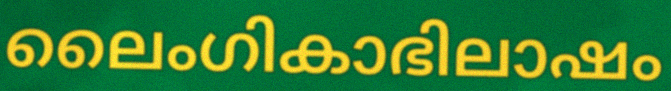
ലൈംഗികാഭിലാഷം